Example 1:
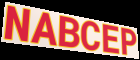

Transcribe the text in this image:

NABCEP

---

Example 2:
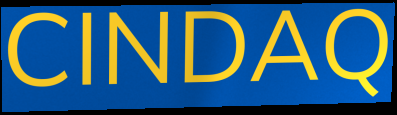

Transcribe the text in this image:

CINDAQ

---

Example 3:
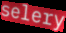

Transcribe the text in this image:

selery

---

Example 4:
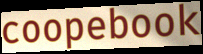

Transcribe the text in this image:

coopebook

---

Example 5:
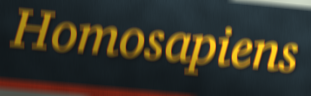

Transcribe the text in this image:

Homosapiens